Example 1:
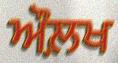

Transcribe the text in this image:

ਔਲ਼ਖ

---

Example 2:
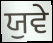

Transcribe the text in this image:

ਯੁਵੇ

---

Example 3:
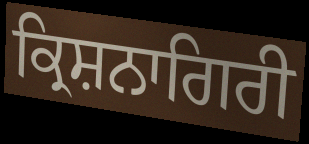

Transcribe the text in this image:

ਕ੍ਰਿਸ਼ਨਾਗਿਰੀ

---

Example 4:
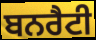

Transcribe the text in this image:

ਬਨਰੈਟੀ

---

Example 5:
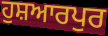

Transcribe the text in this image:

ਹੁਸ਼ਆਰਪੁਰ